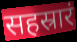
सहस्रारं